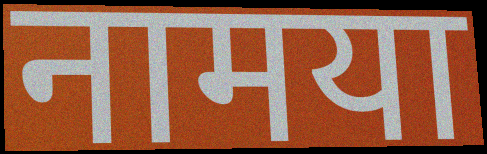
नामया